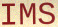
IMS